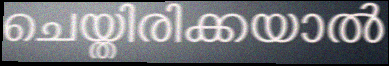
ചെയ്തിരിക്കയാൽ